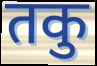
तकु